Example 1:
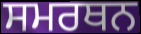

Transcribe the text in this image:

ਸਮਰਥਨ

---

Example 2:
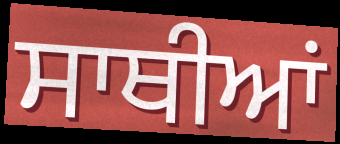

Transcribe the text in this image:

ਸਾਥੀਆਂ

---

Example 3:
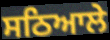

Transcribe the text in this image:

ਸਠਿਆਲੇ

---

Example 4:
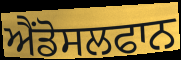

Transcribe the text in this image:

ਐਂਡੋਸਲਫਾਨ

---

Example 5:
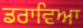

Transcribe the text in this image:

ਡਰਾਵਿਆ